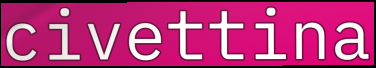
civettina